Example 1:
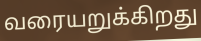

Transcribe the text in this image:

வரையறுக்கிறது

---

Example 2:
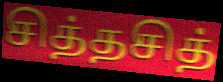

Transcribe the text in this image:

சித்தசித்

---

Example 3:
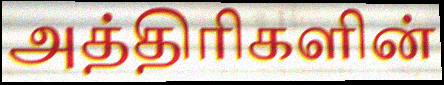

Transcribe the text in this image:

அத்திரிகளின்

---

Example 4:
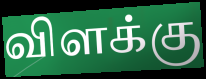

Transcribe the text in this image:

விளக்கு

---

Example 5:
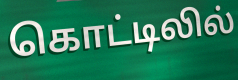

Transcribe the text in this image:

கொட்டிலில்